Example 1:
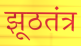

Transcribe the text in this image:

झूठतंत्र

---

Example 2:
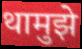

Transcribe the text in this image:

थामुझे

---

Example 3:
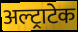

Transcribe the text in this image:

अल्‍ट्राटेक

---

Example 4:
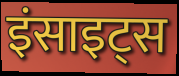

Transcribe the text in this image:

इंसाइट्स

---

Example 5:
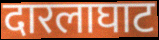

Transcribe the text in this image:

दारलाघाट